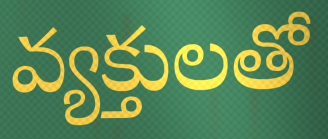
వ్యక్తులతో